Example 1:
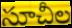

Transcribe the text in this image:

సూచీల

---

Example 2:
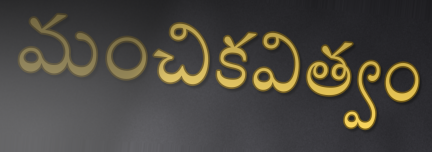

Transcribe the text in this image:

మంచికవిత్వం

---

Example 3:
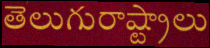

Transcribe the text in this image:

తెలుగురాష్ట్రాలు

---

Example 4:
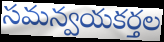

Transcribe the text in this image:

సమన్వయకర్తల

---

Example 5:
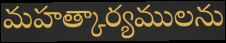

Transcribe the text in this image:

మహత్కార్యములను